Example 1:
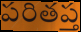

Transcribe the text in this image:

పరితప్త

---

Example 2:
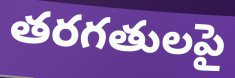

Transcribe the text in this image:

తరగతులపై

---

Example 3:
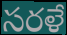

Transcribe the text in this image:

సరళే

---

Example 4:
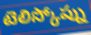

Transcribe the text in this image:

టెలిస్కోప్ను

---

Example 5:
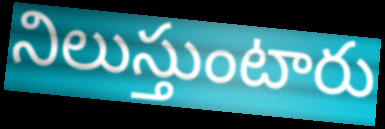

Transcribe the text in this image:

నిలుస్తుంటారు